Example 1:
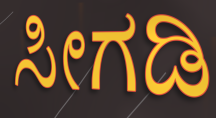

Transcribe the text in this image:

ಸೀಗಡಿ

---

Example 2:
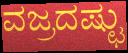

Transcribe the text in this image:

ವಜ್ರದಷ್ಟು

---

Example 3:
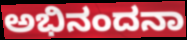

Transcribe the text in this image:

ಅಭಿನಂದನಾ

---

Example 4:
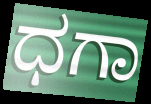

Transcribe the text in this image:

ಧಗಾ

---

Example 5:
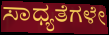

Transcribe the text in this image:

ಸಾಧ್ಯತೆಗಳೇ